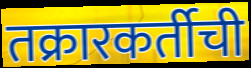
तक्रारकर्तीची